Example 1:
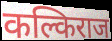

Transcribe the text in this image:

कल्किराज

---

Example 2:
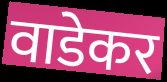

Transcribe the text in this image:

वाडेकर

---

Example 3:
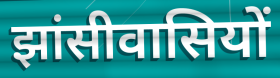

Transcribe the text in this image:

झांसीवासियों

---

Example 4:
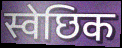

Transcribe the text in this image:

स्वेछिक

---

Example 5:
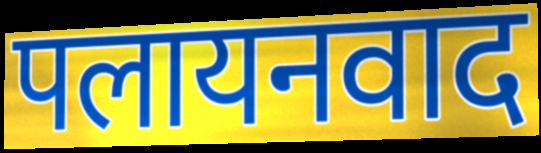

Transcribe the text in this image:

पलायनवाद